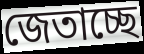
জেতাচ্ছে